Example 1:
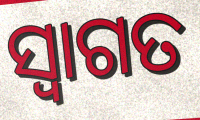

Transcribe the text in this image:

ସ୍ବାଗତ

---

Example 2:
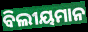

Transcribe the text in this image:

ବିଲୀୟମାନ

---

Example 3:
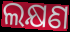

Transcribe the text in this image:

ଲକ୍ଷଣ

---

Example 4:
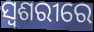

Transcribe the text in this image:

ସ୍ୱଶରୀରେ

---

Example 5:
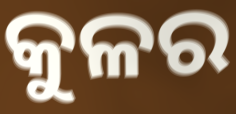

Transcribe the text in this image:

କୁଳର